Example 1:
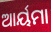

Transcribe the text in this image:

ଆର୍ୟମା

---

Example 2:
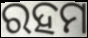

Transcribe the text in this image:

ରହମ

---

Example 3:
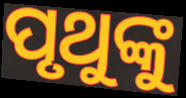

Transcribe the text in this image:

ପୃଥୁଙ୍କୁ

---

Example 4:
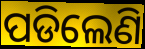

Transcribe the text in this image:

ପଡିଲେଣି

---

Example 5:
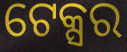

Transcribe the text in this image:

ଟେକ୍ସର